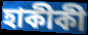
হাকীকী